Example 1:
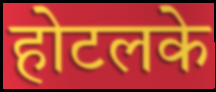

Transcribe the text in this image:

होटलके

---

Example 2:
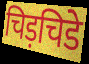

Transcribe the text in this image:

चिड़चिडे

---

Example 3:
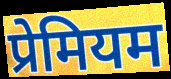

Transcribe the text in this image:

प्रेमियम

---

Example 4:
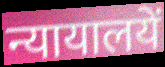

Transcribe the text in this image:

न्यायालयें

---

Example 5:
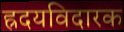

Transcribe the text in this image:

ह्रदयविदारक